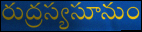
రుద్రస్యసూనుం